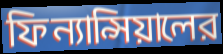
ফিন্যান্সিয়ালের